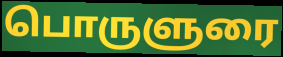
பொருளுரை